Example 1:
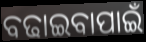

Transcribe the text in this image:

ବଢାଇବାପାଇଁ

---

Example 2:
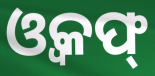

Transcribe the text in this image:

ଓ୍ୱକଫ୍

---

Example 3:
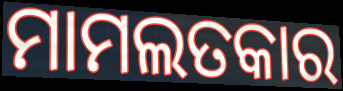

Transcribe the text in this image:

ମାମଲତକାର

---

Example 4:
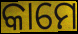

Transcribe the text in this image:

କାମେ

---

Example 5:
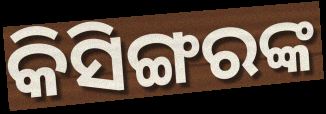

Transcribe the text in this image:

କିସିଙ୍ଗରଙ୍କ